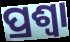
ପ୍ରଶ୍ଵା